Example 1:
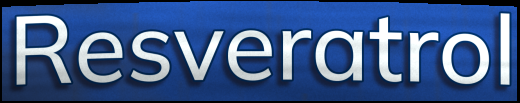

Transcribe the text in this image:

Resveratrol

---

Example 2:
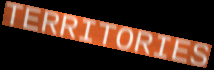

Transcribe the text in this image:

TERRITORIES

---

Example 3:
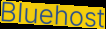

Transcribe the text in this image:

Bluehost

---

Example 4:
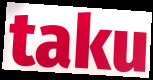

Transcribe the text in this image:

taku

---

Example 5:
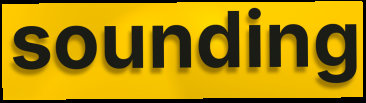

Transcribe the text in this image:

sounding